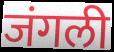
जंगली